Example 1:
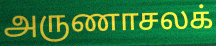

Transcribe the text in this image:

அருணாசலக்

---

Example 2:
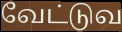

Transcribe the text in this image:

வேட்டுவ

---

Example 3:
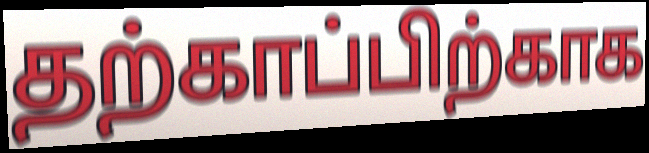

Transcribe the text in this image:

தற்காப்பிற்காக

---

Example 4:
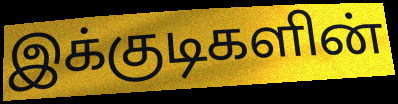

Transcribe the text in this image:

இக்குடிகளின்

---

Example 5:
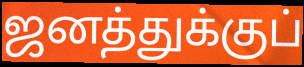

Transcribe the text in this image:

ஜனத்துக்குப்